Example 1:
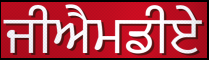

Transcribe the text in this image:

ਜੀਐਮਡੀਏ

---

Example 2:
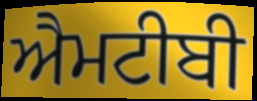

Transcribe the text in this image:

ਐਮਟੀਬੀ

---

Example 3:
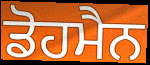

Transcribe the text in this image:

ਡੋਹਮੈਨ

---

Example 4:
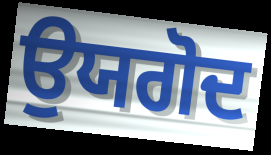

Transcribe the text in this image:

ਉਯਗੋਦ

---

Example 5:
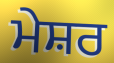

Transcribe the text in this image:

ਮੇਸ਼ਰ